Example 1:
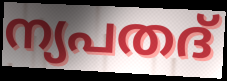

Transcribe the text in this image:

ന്യപതദ്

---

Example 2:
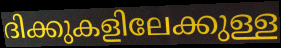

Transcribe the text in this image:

ദിക്കുകളിലേക്കുള്ള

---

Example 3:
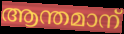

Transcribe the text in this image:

ആന്തമാന്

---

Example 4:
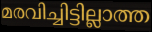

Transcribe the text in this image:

മരവിച്ചിട്ടില്ലാത്ത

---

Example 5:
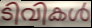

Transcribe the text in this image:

ടിവികൾ